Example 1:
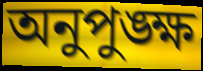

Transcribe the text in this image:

অনুপুঙ্ক্ষ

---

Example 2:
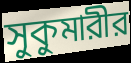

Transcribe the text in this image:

সুকুমারীর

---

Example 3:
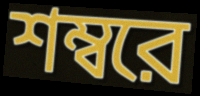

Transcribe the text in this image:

শম্বরে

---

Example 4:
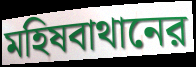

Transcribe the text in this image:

মহিষবাথানের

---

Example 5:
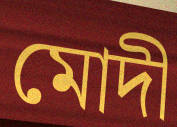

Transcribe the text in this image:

মোদী